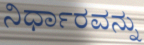
ನಿರ್ಧಾರವನ್ನು